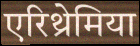
एरिथ्रेमिया